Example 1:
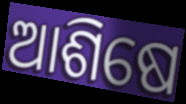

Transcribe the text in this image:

ଆଶିଷେ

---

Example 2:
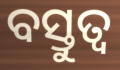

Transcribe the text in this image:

ବସ୍ତୁତ୍ୱ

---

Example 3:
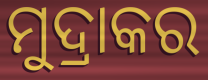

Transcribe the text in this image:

ମୁଦ୍ରାକର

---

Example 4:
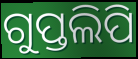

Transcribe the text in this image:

ଗୁପ୍ତଲିପି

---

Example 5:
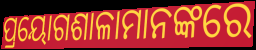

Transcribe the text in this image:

ପ୍ରୟୋଗଶାଳାମାନଙ୍କରେ